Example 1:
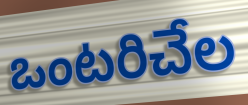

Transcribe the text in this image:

ఒంటరిచేల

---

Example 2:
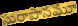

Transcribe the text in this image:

సురాపానమూ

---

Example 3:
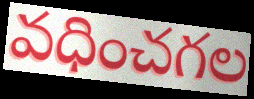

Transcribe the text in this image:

వధించగల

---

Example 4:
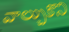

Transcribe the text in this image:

వాల్చుకొని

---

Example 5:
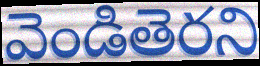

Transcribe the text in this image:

వెండితెరని